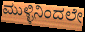
ಮುಳ್ಳಿನಿಂದಲೇ